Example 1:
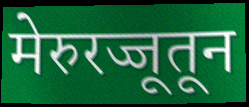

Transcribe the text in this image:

मेरुरज्जूतून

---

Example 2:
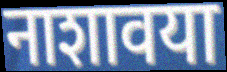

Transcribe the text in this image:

नाशावया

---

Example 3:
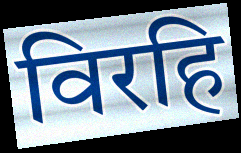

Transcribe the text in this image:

विरहि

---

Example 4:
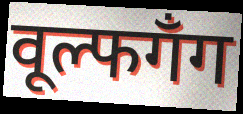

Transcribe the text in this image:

वूल्फगँग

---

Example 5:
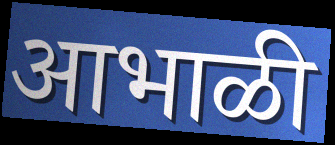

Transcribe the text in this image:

आभाळी